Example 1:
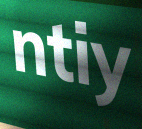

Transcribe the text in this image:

ntiy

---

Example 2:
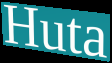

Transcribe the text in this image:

Huta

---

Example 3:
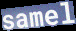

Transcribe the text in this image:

samel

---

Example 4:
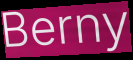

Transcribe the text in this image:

Berny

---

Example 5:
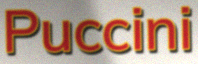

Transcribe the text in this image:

Puccini